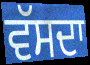
ਵੱਸਦਾ